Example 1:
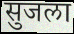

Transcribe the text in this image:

सुजला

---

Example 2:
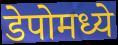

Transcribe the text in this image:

डेपोमध्ये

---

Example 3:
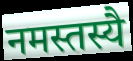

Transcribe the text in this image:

नमस्तस्यै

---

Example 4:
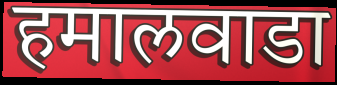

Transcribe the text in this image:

हमालवाडा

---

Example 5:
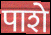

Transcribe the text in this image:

पाशे